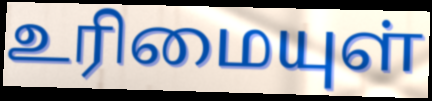
உரிமையுள்